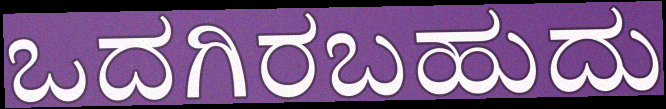
ಒದಗಿರಬಹುದು